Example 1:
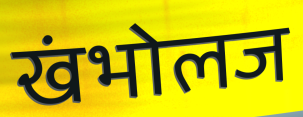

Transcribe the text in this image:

खंभोलज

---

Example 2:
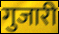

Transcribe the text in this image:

गुजारी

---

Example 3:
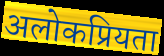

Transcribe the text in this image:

अलोकप्रियता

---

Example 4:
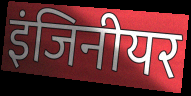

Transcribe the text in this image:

इंजिनीयर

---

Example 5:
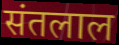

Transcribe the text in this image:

संतलाल